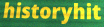
historyhit